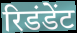
रिडंडेंट